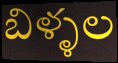
బిళ్ళల